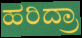
ಹರಿದ್ರಾ